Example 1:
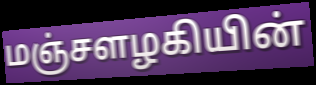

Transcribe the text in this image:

மஞ்சளழகியின்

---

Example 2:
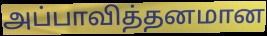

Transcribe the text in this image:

அப்பாவித்தனமான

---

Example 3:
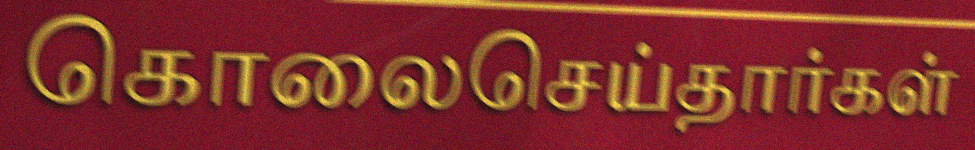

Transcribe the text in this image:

கொலைசெய்தார்கள்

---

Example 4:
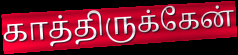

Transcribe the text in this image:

காத்திருக்கேன்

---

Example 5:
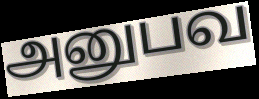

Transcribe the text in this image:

அனுபவ